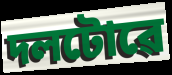
দলটোৱে